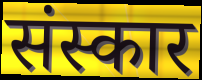
संस्कार